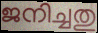
ജനിച്ചതു